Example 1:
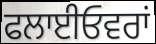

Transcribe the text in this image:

ਫਲਾਈਓਵਰਾਂ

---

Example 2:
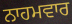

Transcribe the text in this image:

ਨਾਹਮਵਾਰ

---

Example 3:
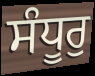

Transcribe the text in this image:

ਸੰਧੂਰੁ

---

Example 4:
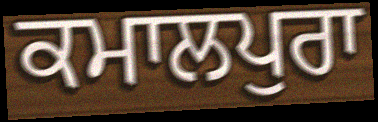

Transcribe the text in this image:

ਕਮਾਲਪੁਰਾ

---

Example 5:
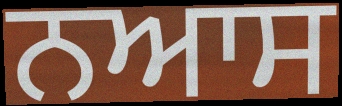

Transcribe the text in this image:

ਨਆਸ